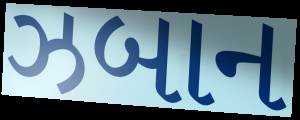
ઝબાન